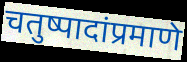
चतुष्पादांप्रमाणे